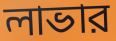
লাভার